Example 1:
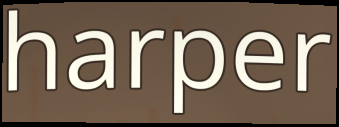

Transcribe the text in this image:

harper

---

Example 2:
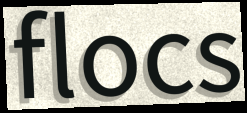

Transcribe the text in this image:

flocs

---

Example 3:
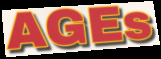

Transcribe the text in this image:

AGEs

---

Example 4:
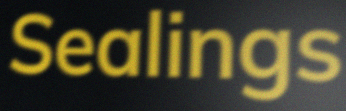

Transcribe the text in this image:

Sealings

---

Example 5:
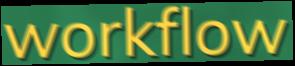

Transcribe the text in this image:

workflow